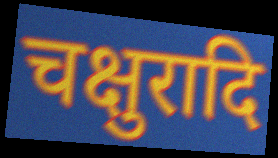
चक्षुरादि